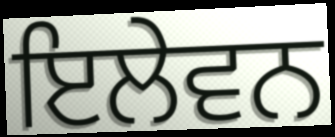
ਇਲੇਵਨ